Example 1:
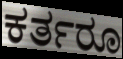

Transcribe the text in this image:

ಕರ್ತರೂ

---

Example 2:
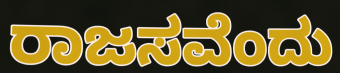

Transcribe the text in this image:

ರಾಜಸವೆಂದು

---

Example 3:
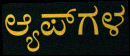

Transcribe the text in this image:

ಆ್ಯಪ್‌ಗಳ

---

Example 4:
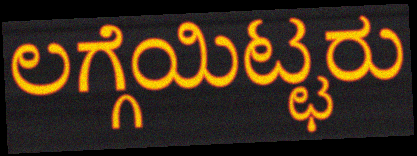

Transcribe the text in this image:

ಲಗ್ಗೆಯಿಟ್ಟರು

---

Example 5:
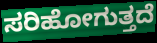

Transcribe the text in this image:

ಸರಿಹೋಗುತ್ತದೆ